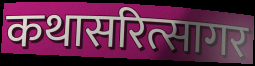
कथासरित्सागर